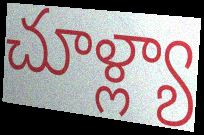
చూళ్ల్యా